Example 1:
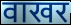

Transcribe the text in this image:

वाखर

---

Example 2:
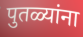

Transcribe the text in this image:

पुतळ्यांना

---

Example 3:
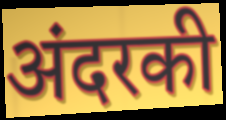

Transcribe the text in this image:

अंदरकी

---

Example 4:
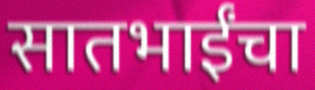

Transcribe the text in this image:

सातभाईंचा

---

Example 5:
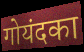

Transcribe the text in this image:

गोयंदका